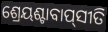
ଶ୍ରେୟଶ୍ଚାବାପ୍‌ସୀତି